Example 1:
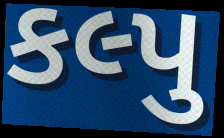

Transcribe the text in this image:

કલ્પુ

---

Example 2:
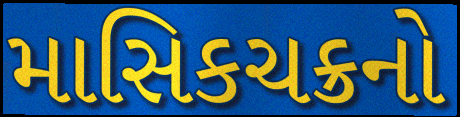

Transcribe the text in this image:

માસિકચક્રનો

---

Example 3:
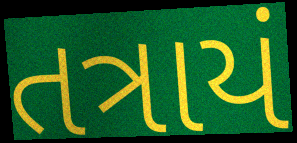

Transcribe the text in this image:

તત્રાયં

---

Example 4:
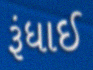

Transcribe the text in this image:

રૂંધાઈ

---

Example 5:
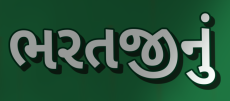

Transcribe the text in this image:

ભરતજીનું